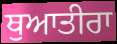
ਥੁਆਤੀਰਾ